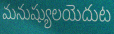
మనుష్యులయెదుట